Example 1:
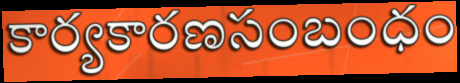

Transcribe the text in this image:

కార్యకారణసంబంధం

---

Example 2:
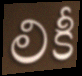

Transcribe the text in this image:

లికీ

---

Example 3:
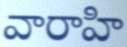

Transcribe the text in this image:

వారాహి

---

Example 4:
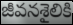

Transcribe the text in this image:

జీవనశైలికి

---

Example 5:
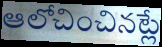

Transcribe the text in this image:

ఆలోచించినట్లే